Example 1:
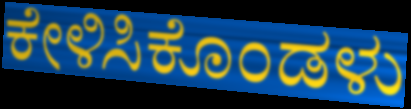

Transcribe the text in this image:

ಕೇಳಿಸಿಕೊಂಡಳು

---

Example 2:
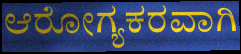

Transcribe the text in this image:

ಆರೋಗ್ಯಕರವಾಗಿ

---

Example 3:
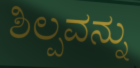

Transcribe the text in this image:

ಶಿಲ್ಪವನ್ನು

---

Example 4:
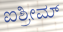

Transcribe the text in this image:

ಐಶ್ರೀಮ್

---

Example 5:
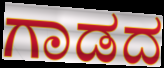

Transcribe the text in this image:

ಗಾಡದ